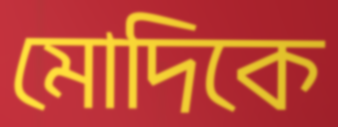
মোদিকে